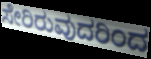
ಸೇರಿರುವುದರಿಂದ